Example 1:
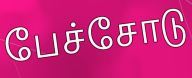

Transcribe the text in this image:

பேச்சோடு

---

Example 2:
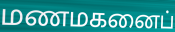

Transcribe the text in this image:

மணமகனைப்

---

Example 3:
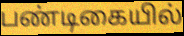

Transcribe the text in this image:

பண்டிகையில்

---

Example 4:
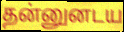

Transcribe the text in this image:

தன்னுனடய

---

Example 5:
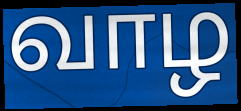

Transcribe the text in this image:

வாழ